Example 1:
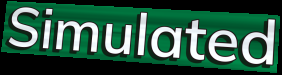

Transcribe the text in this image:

Simulated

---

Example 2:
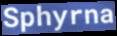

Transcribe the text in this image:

Sphyrna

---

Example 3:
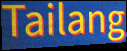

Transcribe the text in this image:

Tailang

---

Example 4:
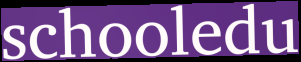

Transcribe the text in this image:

schooledu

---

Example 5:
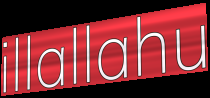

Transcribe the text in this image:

illallahu